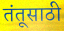
तंतूसाठी